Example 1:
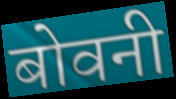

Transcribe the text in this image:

बोवनी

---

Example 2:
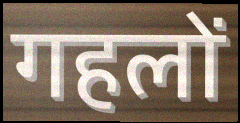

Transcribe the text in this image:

गहलों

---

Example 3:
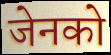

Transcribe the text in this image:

जेनको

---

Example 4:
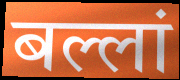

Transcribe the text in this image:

बल्लां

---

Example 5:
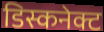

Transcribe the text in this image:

डिस्कनेक्ट